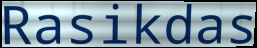
Rasikdas